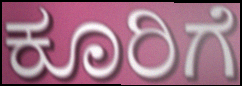
ಕೂರಿಗೆ